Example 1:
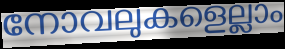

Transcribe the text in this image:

നോവലുകളെല്ലാം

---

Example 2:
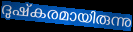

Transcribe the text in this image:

ദുഷ്‌കരമായിരുന്നു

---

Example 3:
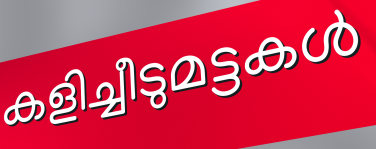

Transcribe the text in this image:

കളിച്ചീടുമട്ടകൾ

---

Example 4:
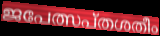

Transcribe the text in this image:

ജപേത്സപ്തശതീം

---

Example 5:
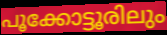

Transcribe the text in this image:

പൂക്കോട്ടൂരിലും